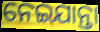
ନେଇଯାନ୍ତା